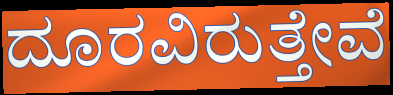
ದೂರವಿರುತ್ತೇವೆ